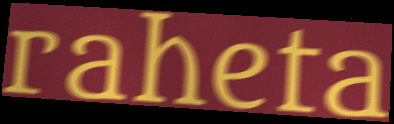
raheta